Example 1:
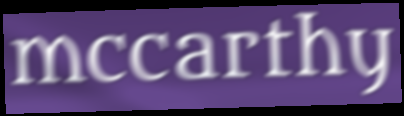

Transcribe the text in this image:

mccarthy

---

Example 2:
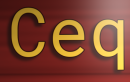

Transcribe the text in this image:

Ceq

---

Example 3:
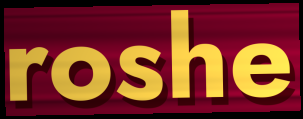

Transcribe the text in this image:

roshe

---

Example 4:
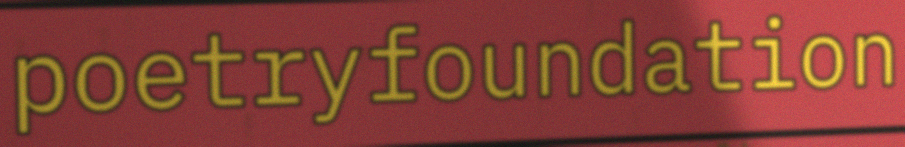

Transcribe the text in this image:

poetryfoundation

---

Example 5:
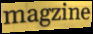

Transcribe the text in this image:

magzine